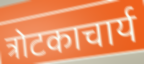
त्रोटकाचार्य